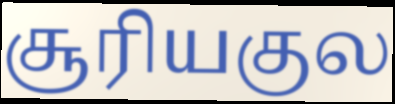
சூரியகுல